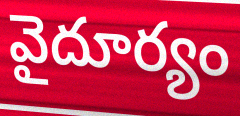
వైదూర్యం